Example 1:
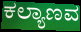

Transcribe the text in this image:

ಕಲ್ಯಾಣವ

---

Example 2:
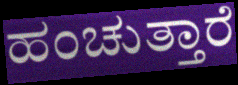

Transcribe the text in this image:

ಹಂಚುತ್ತಾರೆ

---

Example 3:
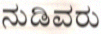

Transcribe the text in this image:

ನುಡಿವರು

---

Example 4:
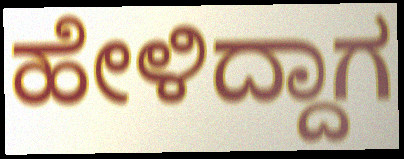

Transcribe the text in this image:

ಹೇಳಿದ್ದಾಗ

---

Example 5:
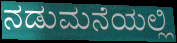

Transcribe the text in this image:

ನಡುಮನೆಯಲ್ಲಿ